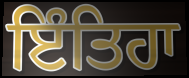
ਇੰਤਿਹਾ